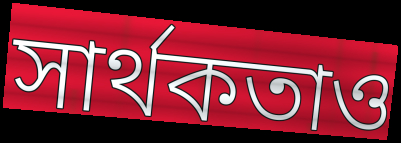
সার্থকতাও